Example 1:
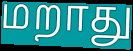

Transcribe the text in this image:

மறாது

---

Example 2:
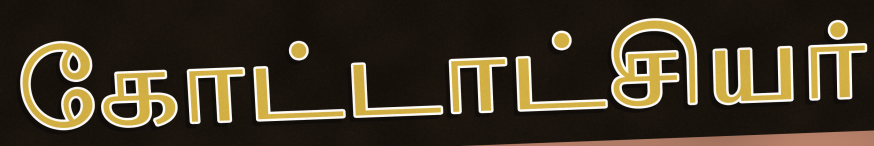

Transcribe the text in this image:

கோட்டாட்சியர்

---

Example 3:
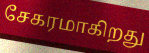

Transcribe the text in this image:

சேகரமாகிறது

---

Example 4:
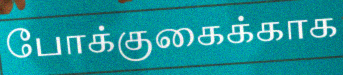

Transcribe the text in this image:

போக்குகைக்காக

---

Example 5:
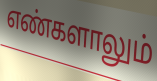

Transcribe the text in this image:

எண்களாலும்